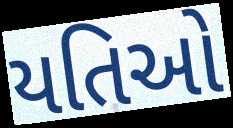
યતિઓ